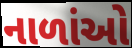
નાળાંઓ